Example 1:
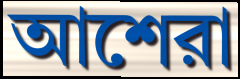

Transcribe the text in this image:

আশেরা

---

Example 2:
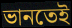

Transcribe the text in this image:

ভানতেই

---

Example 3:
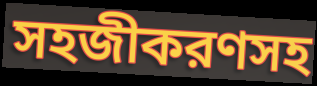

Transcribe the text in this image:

সহজীকরণসহ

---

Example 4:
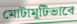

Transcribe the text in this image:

মোটামুটিভাবে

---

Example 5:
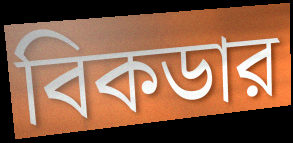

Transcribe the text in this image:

বিকডার